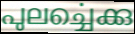
പുലൎച്ചെക്കു